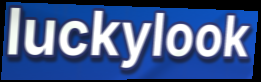
luckylook